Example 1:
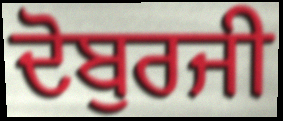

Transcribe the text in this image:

ਦੋਬੁਰਜੀ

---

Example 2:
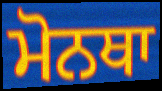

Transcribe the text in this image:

ਮੋਨਥਾ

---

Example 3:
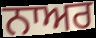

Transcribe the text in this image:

ਨਾਅਰ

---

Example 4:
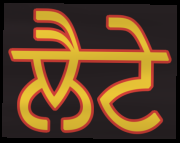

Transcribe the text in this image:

ਲੈਟੇ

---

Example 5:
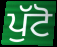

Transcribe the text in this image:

ਪੁੱਟੋ